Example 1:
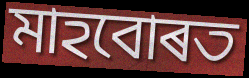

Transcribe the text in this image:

মাহবোৰত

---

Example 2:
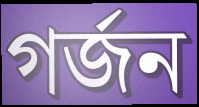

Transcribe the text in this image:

গৰ্জন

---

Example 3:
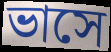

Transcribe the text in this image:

ভাসে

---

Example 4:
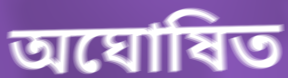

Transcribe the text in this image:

অঘোষিত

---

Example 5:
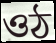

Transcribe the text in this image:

ওঠ